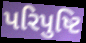
પરિપુષ્ટિ